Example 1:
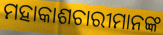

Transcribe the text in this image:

ମହାକାଶଚାରୀମାନଙ୍କ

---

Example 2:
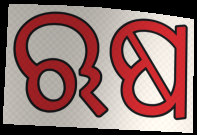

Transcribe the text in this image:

ଋଷ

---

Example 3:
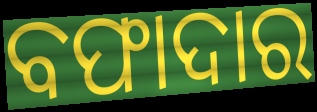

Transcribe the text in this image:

ବଫାଦାର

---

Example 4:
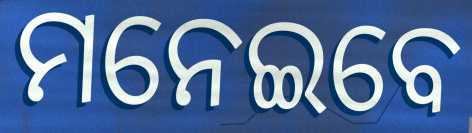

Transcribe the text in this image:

ମନେଇବେ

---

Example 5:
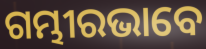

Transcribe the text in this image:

ଗମ୍ଭୀରଭାବେ